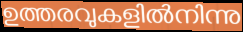
ഉത്തരവുകളിൽനിന്നു